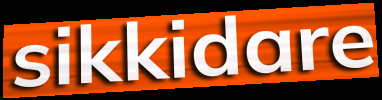
sikkidare